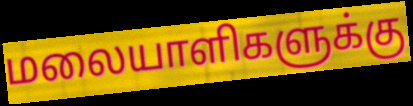
மலையாளிகளுக்கு